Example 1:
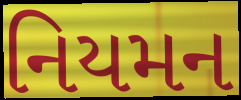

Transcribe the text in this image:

નિયમન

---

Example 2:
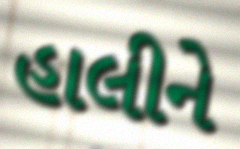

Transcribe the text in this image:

હાલીને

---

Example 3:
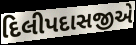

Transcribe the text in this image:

દિલીપદાસજીએ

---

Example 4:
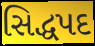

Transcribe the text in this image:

સિદ્ધપદ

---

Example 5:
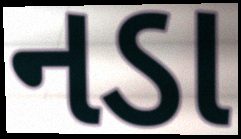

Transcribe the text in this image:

નડા